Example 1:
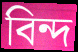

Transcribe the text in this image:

বিন্দ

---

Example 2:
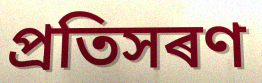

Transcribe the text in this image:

প্ৰতিসৰণ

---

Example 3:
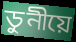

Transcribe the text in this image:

ডুনীয়ে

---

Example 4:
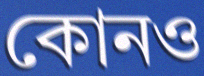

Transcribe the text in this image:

কোনও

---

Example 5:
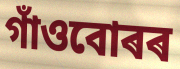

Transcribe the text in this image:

গাঁওবোৰৰ